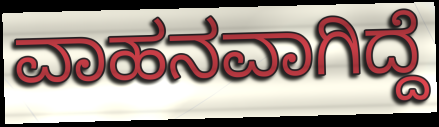
ವಾಹನವಾಗಿದ್ದೆ